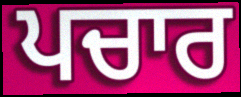
ਪਚਾਰ